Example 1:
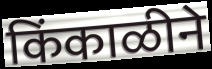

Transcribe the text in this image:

किंकाळीने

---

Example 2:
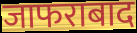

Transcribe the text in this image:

जाफराबाद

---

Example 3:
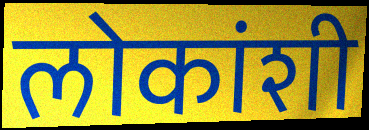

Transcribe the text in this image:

लोकांशी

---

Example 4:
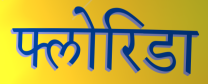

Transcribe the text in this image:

फ्लोरिडा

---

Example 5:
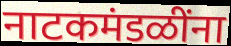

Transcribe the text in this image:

नाटकमंडळींना